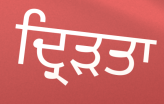
ਦ੍ਰਿੜਤਾ